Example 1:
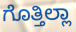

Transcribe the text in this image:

ಗೊತ್ತಿಲ್ಲಾ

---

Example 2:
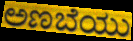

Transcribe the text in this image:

ಅಣಬೆಯು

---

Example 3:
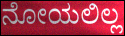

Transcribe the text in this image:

ನೋಯಲಿಲ್ಲ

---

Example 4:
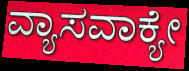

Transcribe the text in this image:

ವ್ಯಾಸವಾಕ್ಯೇ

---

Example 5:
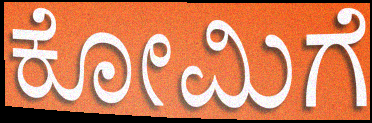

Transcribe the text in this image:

ಕೋಮಿಗೆ